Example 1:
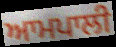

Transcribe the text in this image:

ਆਮਪਾਲੀ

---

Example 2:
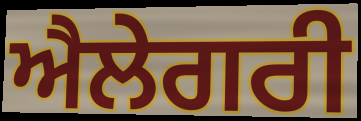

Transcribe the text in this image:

ਐਲੇਗਰੀ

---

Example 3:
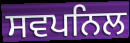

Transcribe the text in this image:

ਸਵਪਨਿਲ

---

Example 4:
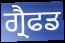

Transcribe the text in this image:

ਗ੍ਰੈਫਡ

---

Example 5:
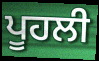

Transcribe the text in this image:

ਪੂਹਲੀ